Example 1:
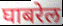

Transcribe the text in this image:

घाबरेल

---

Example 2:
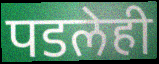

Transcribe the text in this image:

पडलेही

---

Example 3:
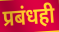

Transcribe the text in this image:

प्रबंधही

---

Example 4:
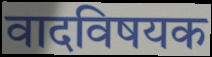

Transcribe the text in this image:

वादविषयक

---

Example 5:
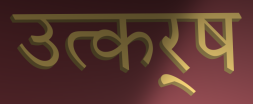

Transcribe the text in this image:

उत्कर्ष